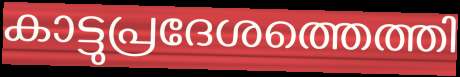
കാട്ടുപ്രദേശത്തെത്തി